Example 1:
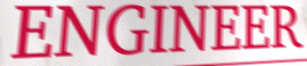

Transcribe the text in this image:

ENGINEER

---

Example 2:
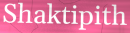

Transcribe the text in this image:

Shaktipith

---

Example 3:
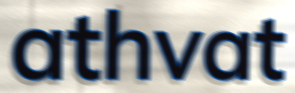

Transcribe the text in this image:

athvat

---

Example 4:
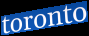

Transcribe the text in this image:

toronto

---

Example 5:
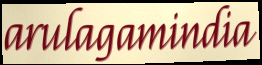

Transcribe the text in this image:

arulagamindia